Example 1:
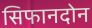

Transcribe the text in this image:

सिफानदोन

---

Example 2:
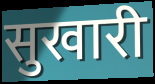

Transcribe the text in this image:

सुखारी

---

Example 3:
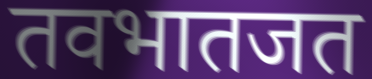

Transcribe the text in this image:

तवभातजत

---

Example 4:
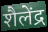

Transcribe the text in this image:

शैलेंद्र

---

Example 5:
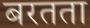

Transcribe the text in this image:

बरतता